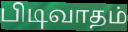
பிடிவாதம்